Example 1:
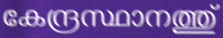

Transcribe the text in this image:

കേന്ദ്രസ്ഥാനത്തു്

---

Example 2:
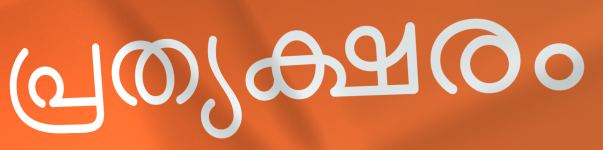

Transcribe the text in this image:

പ്രത്യക്ഷരം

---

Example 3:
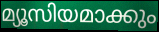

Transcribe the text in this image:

മ്യൂസിയമാക്കും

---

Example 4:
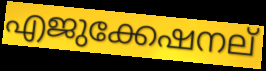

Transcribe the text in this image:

എജുക്കേഷനല്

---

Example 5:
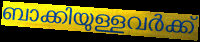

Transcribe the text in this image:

ബാക്കിയുള്ളവർക്ക്